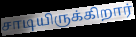
சாடியிருக்கிறார்